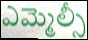
ఎమ్మెల్సీ